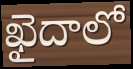
ఖైదాలో